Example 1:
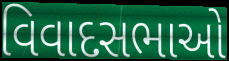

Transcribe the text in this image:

વિવાદસભાઓ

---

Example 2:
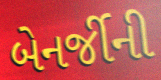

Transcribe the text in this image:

બેનર્જીની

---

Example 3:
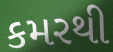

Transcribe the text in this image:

કમરથી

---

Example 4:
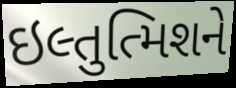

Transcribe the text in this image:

ઇલ્તુત્મિશને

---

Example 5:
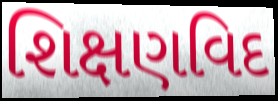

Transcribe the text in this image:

શિક્ષણવિદ